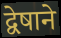
द्वेषाने